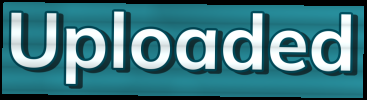
Uploaded